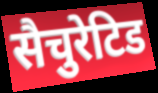
सैचुरेटिड